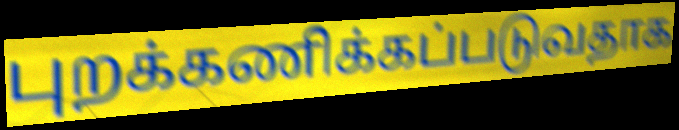
புறக்கணிக்கப்படுவதாக